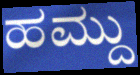
ಹಮ್ದು